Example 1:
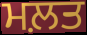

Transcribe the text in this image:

ਮਲ਼ਤ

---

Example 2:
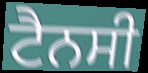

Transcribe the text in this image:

ਟੈਨਸੀ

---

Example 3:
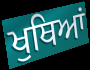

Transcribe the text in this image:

ਖੁਥਿਆਂ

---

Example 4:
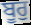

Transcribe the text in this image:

ਬੂਰੁ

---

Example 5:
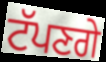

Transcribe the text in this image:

ਟੱਪਣਗੇ